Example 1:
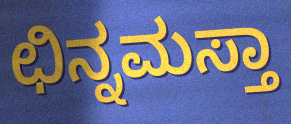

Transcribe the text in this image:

ಛಿನ್ನಮಸ್ತಾ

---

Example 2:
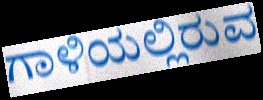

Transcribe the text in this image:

ಗಾಳಿಯಲ್ಲಿರುವ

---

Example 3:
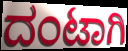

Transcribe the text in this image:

ದಂಟಾಗಿ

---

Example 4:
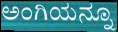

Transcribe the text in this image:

ಅಂಗಿಯನ್ನೂ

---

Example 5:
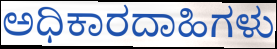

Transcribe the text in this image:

ಅಧಿಕಾರದಾಹಿಗಳು